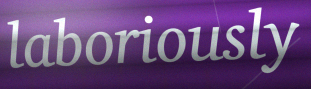
laboriously